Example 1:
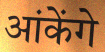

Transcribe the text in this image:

आंकेंगे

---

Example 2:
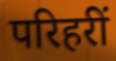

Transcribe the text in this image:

परिहरीं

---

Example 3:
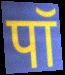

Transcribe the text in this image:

पॉ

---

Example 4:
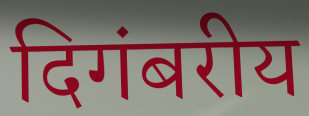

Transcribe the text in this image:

दिगंबरीय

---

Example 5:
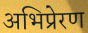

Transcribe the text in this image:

अभिप्रेरण